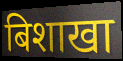
बिशाखा